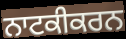
ਨਾਟਕੀਕਰਨ